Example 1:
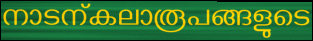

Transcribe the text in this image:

നാടന്കലാരൂപങ്ങളുടെ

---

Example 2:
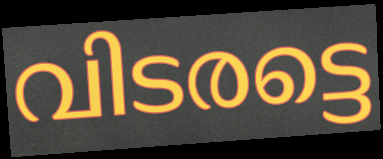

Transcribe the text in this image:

വിടരട്ടെ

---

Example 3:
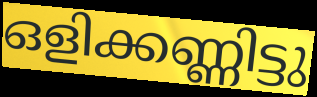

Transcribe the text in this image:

ഒളിക്കണ്ണിട്ടു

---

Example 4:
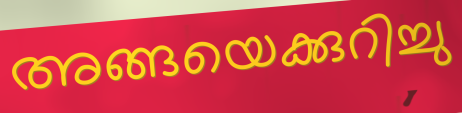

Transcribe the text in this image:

അങ്ങയെക്കുറിച്ചു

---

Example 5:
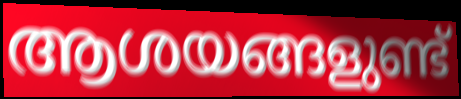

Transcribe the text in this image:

ആശയങ്ങളുണ്ട്